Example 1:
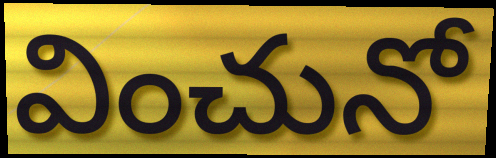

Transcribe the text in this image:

వించునో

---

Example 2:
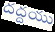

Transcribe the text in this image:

దద్దయు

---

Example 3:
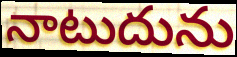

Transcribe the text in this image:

నాటుదును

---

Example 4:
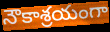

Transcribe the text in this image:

నౌకాశ్రయంగా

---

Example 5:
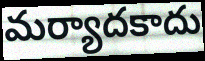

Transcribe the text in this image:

మర్యాదకాదు